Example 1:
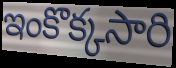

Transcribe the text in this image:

ఇంకొక్కసారి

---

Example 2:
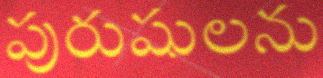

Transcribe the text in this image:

పురుషులను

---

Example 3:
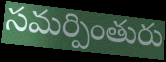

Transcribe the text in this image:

సమర్పింతురు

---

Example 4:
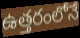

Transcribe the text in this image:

ఉత్తరంలోనే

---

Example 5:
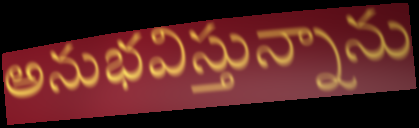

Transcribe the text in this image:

అనుభవిస్తున్నాను